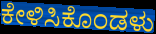
ಕೇಳಿಸಿಕೊಂಡಳು